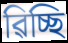
ৱিচ্ছি